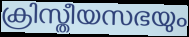
ക്രിസ്തീയസഭയും